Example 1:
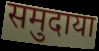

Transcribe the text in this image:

समुदाया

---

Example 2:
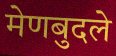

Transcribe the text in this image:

मेणबुदले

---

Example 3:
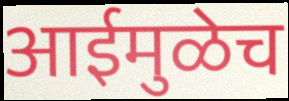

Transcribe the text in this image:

आईमुळेच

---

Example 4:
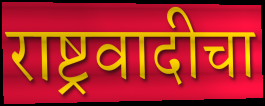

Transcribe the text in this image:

राष्ट्रवादीचा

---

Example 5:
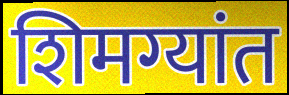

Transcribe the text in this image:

शिमग्यांत